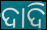
ଦାଦି